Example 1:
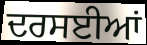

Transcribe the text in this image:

ਦਰਸਈਆਂ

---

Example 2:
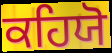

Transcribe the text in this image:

ਕਹਿਯੋ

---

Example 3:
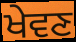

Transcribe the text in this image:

ਖੇਵਣ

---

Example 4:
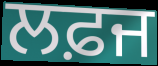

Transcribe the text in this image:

ਲਫ਼ਜ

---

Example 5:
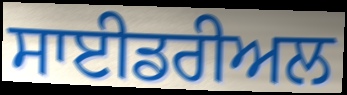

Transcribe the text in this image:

ਸਾਈਡਰੀਅਲ